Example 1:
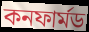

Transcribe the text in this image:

কনফার্মড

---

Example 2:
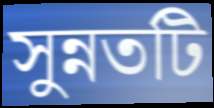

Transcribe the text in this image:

সুন্নতটি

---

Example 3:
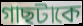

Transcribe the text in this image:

গাছটাকে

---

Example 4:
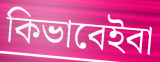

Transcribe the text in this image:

কিভাবেইবা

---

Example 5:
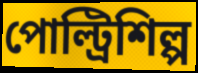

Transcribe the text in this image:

পোল্ট্রিশিল্প